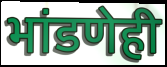
भांडणेही